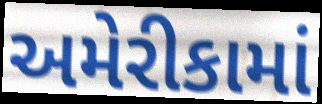
અમેરીકામાં